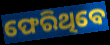
ଫେରିଥିବେ